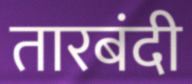
तारबंदी